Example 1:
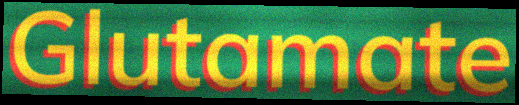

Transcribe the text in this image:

Glutamate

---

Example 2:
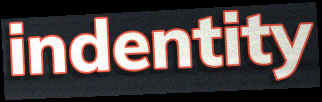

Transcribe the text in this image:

indentity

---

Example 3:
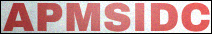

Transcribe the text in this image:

APMSIDC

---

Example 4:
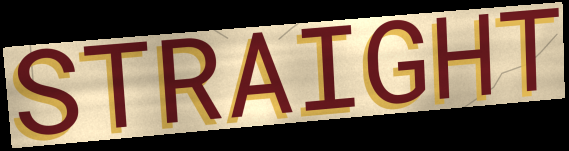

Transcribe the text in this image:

STRAIGHT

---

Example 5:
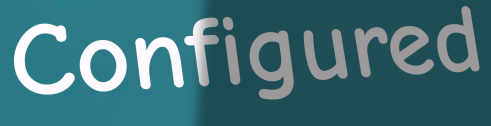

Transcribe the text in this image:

Configured